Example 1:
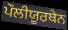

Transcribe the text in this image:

ਪੌਲੀਯੂਰਥੇਨ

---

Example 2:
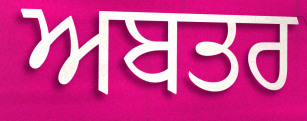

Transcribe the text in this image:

ਅਬਤਰ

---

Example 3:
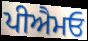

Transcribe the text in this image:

ਪੀਐਮਓ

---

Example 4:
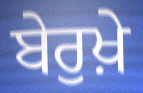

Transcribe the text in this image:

ਬੇਰੁਖ਼ੇ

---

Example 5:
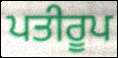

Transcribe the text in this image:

ਪਤੀਰੂਪ